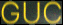
GUC